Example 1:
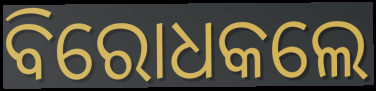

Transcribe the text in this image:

ବିରୋଧକଲେ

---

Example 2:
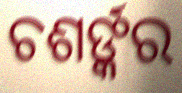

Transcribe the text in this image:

ଚଶର୍ଙ୍କର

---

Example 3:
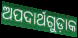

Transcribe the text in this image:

ଅପଦାର୍ଥଗୁଡ଼ାକ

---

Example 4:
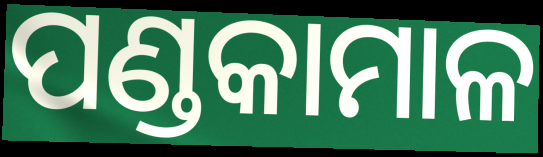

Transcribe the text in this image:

ପଣ୍ଡକାମାଳ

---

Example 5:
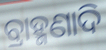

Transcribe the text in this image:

ବ୍ରାହ୍ମଣାଦି